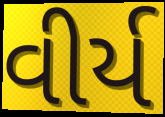
વીર્ય